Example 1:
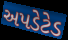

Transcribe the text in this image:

અપડેટેડ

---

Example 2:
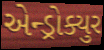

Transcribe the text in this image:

એન્ડ્રોક્યુર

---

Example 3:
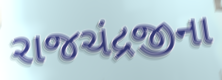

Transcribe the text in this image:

રાજચંદ્રજીના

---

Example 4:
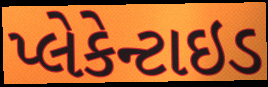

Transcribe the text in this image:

પ્લેકેન્ટાઇડ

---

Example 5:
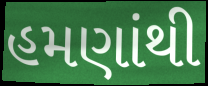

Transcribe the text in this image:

હમણાંથી